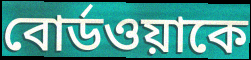
বোর্ডওয়াকে